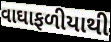
વાઘાફળીયાથી